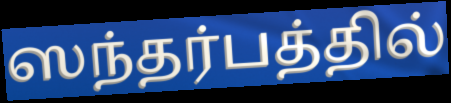
ஸந்தர்பத்தில்